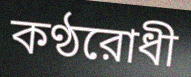
কণ্ঠরোধী